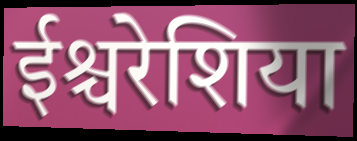
ईश्चरेशिया